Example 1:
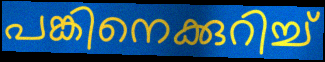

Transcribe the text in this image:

പങ്കിനെക്കുറിച്ച്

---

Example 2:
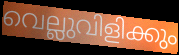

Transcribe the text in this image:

വെല്ലുവിളിക്കും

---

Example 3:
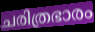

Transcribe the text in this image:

ചരിത്രഭാരം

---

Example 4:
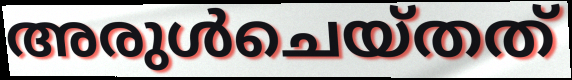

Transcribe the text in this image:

അരുൾചെയ്തത്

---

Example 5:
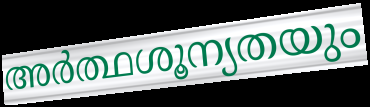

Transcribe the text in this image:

അർത്ഥശൂന്യതയും